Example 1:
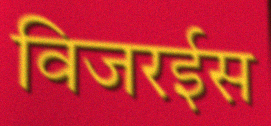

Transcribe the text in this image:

विजरईस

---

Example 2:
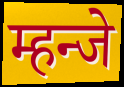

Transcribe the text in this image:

म्हन्जे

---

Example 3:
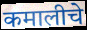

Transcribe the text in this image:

कमालीचे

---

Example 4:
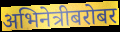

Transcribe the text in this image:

अभिनेत्रीबरोबर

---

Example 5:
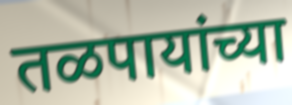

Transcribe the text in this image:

तळपायांच्या